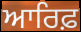
ਆਰਿਫ਼